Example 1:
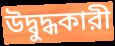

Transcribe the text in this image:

উদ্বুদ্ধকারী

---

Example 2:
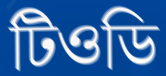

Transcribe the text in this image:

টিওডি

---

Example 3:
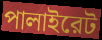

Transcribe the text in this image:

পালাইরেট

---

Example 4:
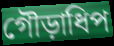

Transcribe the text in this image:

গৌড়াধিপ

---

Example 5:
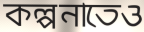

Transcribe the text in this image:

কল্পনাতেও